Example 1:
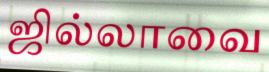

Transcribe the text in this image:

ஜில்லாவை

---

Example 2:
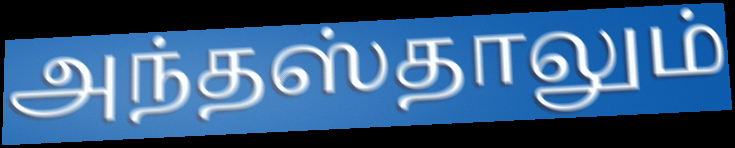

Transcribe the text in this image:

அந்தஸ்தாலும்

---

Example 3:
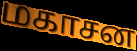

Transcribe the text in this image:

மகாசன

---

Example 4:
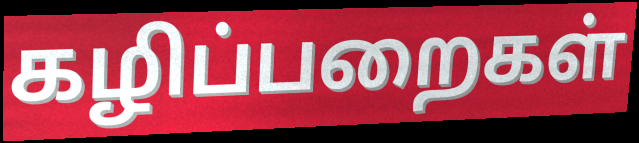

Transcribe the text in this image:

கழிப்பறைகள்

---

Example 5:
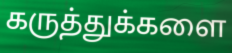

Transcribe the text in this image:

கருத்துக்களை